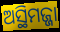
ଅସ୍ଥିମଜ୍ଜା